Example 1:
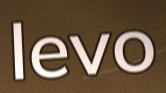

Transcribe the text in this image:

levo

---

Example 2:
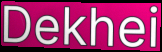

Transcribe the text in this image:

Dekhei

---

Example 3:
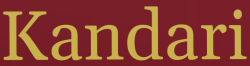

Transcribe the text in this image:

Kandari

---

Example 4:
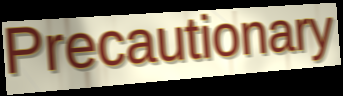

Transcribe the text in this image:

Precautionary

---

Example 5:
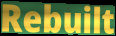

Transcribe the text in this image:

Rebuilt